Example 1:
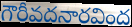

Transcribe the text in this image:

గౌరీవదనారవింద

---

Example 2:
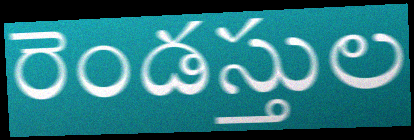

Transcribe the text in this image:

రెండస్తుల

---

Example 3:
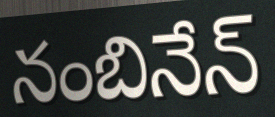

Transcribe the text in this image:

నంబినేన్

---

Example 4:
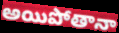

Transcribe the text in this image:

అయిపోతానా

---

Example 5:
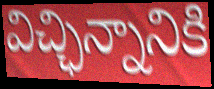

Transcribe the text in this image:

విచ్ఛిన్నానికి